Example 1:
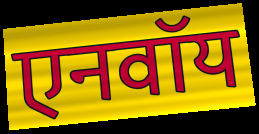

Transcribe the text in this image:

एनवॉय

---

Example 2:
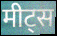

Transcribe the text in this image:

मीट्स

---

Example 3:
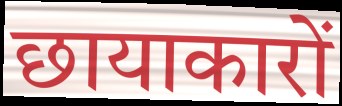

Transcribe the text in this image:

छायाकारों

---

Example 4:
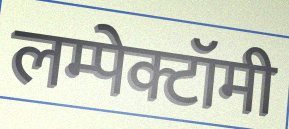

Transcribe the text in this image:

लम्पेक्टॉमी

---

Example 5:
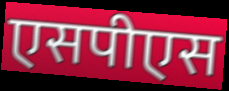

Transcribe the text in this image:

एसपीएस